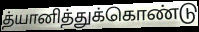
த்யானித்துக்கொண்டு